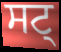
ਸਟ੍